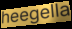
heegella